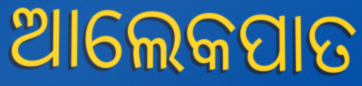
ଆଲେକପାତ